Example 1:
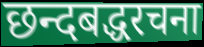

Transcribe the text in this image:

छन्दबद्धरचना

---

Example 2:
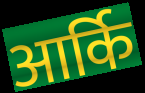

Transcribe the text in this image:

आर्कि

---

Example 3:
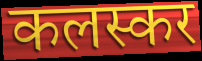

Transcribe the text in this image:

कलस्कर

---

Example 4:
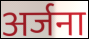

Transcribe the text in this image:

अर्जना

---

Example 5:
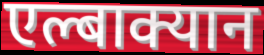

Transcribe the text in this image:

एल्बाक्यान